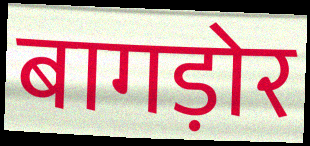
बागड़ोर